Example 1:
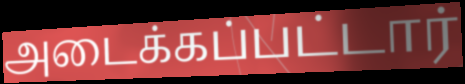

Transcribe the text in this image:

அடைக்கப்பட்டார்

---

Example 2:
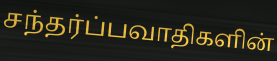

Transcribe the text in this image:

சந்தர்ப்பவாதிகளின்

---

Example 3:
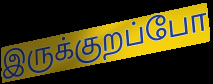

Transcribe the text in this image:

இருக்குறப்போ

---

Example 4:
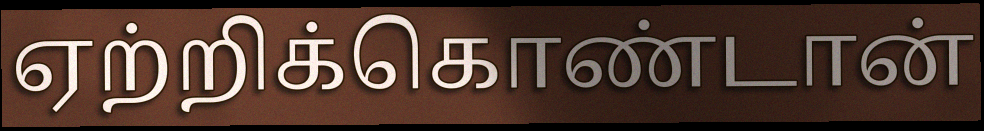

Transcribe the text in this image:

ஏற்றிக்கொண்டான்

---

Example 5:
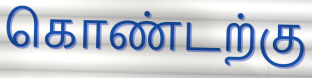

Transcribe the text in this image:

கொண்டற்கு